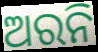
ଅରନି